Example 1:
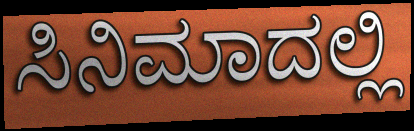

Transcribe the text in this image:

ಸಿನಿಮಾದಲ್ಲಿ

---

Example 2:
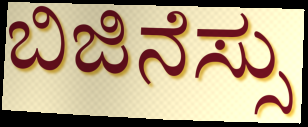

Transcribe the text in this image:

ಬಿಜಿನೆಸ್ಸು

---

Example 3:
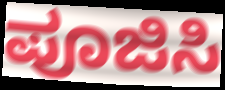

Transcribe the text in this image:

ಪೂಜಿಸಿ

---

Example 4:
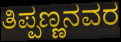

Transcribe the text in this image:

ತಿಪ್ಪಣ್ಣನವರ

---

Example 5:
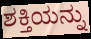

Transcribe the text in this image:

ಶಕ್ತಿಯನ್ನು